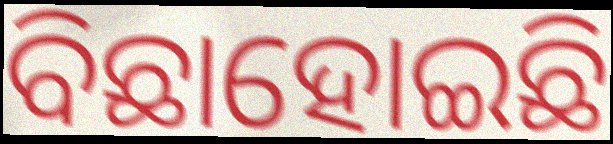
ବିଛାହୋଇଛି